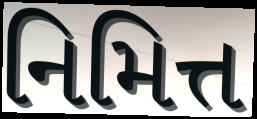
નિમિત્ત